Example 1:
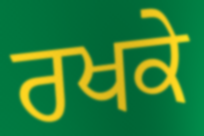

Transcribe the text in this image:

ਰਖਕੇ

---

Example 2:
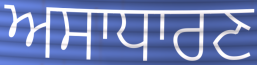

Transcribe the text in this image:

ਅਸਾਧਾਰਣ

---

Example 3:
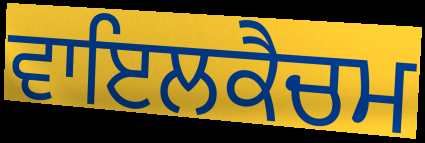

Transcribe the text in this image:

ਵਾਇਲਕੈਚਮ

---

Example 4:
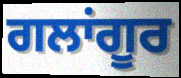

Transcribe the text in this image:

ਗਲਾਂਗੂਰ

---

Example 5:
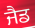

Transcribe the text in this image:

ਜੈਡ